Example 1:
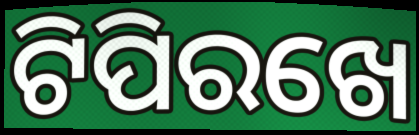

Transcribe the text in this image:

ଟିପିରଖେ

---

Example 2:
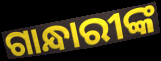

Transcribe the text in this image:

ଗାନ୍ଧାରୀଙ୍କ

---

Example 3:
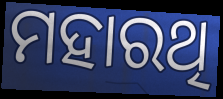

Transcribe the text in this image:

ମହାରଥି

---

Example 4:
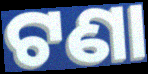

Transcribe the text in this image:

ଟଣା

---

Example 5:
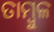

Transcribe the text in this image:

ତାମ୍ୱୁଳ